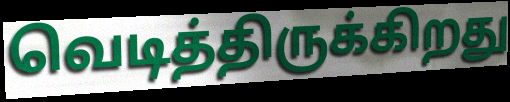
வெடித்திருக்கிறது